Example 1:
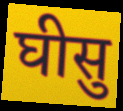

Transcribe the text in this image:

घीसु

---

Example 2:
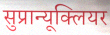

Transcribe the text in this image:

सुप्रान्यूक्लियर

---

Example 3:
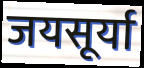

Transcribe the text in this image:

जयसूर्या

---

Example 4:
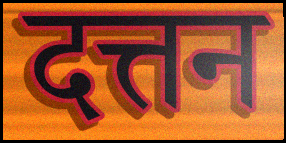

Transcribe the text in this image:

दत्तन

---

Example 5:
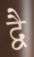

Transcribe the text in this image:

द्वै